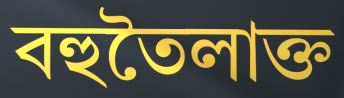
বহুতৈলাক্ত